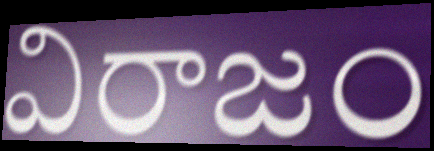
విరాజం